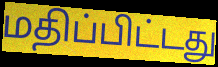
மதிப்பிட்டது